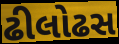
ઢીલોઢસ